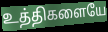
உத்திகளையே